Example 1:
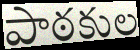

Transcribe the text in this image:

పాఠకుల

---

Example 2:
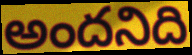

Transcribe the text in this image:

అందనిది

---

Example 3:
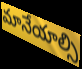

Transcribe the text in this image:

మానేయాల్సి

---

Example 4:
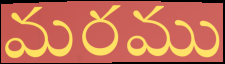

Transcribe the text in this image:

మరము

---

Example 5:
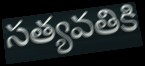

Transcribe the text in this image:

సత్యవతికి